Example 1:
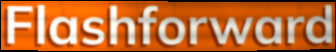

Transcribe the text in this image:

Flashforward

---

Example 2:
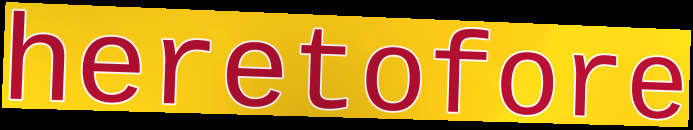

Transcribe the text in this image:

heretofore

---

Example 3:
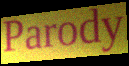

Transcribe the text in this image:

Parody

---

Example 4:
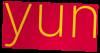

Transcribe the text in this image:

yun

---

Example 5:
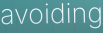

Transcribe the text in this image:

avoiding